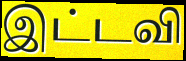
இட்டவி